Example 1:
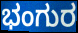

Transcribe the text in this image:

ಭಂಗುರ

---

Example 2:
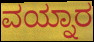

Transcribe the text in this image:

ವಯ್ನಾರ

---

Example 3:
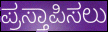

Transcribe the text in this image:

ಪ್ರಸ್ತಾಪಿಸಲು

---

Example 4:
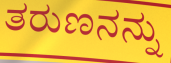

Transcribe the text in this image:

ತರುಣನನ್ನು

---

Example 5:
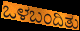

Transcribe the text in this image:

ಒಳಬಂದಿತು